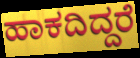
ಹಾಕದಿದ್ದರೆ